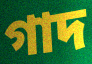
গাদ